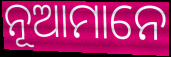
ନୂଆମାନେ